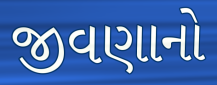
જીવણાનો